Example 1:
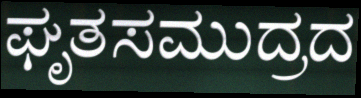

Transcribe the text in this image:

ಘೃತಸಮುದ್ರದ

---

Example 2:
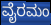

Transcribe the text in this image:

ವೈರಮಂ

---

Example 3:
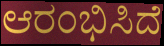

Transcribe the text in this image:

ಆರಂಭಿಸಿದೆ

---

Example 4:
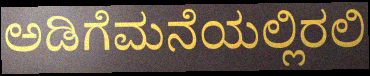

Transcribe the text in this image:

ಅಡಿಗೆಮನೆಯಲ್ಲಿರಲಿ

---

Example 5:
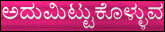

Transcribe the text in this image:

ಅದುಮಿಟ್ಟುಕೊಳ್ಳುವ